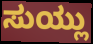
ಸುಯ್ಲು